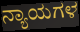
ನ್ಯಾಯಗಳ